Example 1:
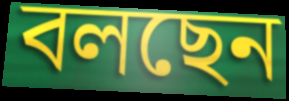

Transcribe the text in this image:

বলছেন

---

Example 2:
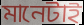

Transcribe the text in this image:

মানেটাই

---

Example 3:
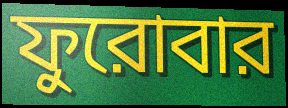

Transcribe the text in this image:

ফুরোবার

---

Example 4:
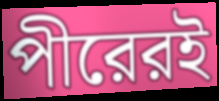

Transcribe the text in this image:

পীরেরই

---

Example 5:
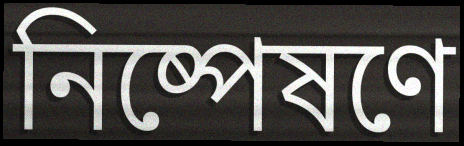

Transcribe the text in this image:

নিষ্পেষণে